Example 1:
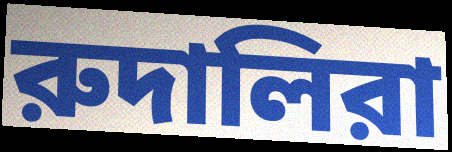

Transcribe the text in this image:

রুদালিরা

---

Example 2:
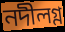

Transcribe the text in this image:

নদীলগ্ন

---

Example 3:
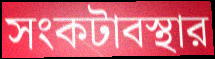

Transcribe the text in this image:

সংকটাবস্থার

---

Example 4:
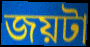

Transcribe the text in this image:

জয়টা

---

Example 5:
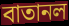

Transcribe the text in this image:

বাতানল